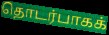
தொடர்பாகக்